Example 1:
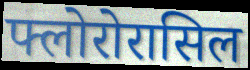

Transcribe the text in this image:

फ्लोरोरासिल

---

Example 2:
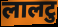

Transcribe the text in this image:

लालटु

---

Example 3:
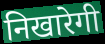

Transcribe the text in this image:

निखारेगी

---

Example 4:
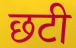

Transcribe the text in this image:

छटी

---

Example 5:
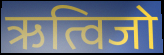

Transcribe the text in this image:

ऋत्विजो